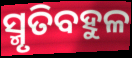
ସ୍ମୃତିବହୁଳ